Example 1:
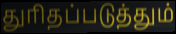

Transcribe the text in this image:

துரிதப்படுத்தும்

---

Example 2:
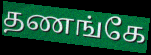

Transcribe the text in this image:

தணங்கே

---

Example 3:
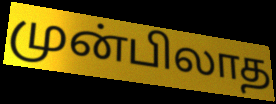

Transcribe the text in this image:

முன்பிலாத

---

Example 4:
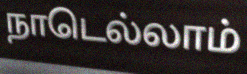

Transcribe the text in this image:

நாடெல்லாம்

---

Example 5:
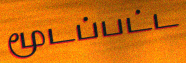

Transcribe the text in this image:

மூடப்பட்ட